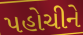
પહોચીને